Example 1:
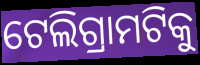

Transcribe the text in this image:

ଟେଲିଗ୍ରାମଟିକୁ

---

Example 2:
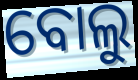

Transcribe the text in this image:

ବୋଲୁ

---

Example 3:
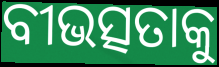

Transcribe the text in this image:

ବୀଭତ୍ସତାକୁ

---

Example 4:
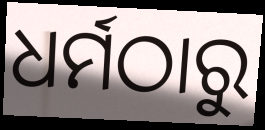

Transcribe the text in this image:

ଧର୍ମଠାରୁ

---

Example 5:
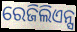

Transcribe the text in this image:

ରେଜିଲିଏନ୍ସ